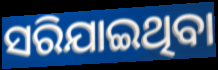
ସରିଯାଇଥିବା